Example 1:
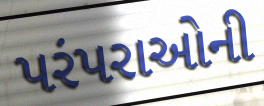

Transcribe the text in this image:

પરંપરાઓની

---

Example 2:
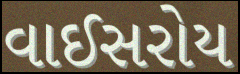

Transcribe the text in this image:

વાઈસરોય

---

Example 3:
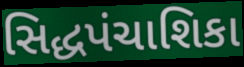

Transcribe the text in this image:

સિદ્ધપંચાશિકા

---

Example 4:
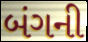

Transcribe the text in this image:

બંગની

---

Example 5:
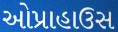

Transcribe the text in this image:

ઓપ્રાહાઉસ